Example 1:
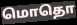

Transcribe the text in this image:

மொதொ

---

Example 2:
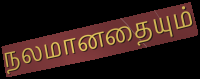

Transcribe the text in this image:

நலமானதையும்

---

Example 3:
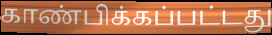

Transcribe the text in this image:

காண்பிக்கப்பட்டது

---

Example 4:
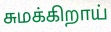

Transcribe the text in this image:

சுமக்கிறாய்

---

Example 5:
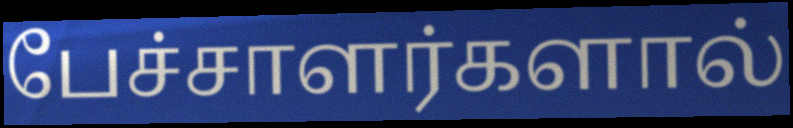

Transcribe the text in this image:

பேச்சாளர்களால்